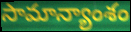
సామాన్యాంశం